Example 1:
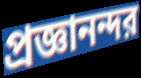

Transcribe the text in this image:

প্রজ্ঞানন্দর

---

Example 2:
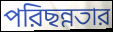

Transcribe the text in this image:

পরিছন্নতার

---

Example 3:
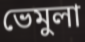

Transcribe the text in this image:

ভেমুলা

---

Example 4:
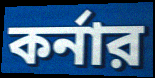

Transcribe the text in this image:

কর্নার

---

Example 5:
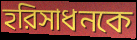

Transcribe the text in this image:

হরিসাধনকে